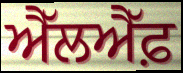
ਐੱਲਐੱਫ਼